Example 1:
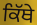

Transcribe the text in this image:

ਕਿੱਥੇ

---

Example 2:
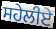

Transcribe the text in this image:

ਸਹੇਲੀਏ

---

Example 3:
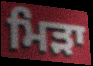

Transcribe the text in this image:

ਮਿੜਾ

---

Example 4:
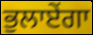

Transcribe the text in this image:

ਭੁਲਾਏਂਗਾ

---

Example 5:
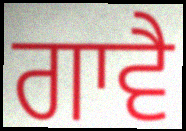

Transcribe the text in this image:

ਗਾਵੈ